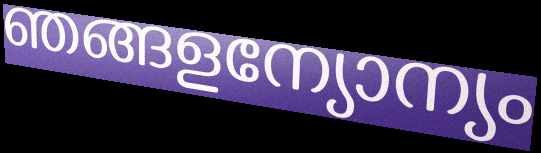
ഞങ്ങളന്യോന്യം